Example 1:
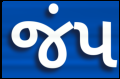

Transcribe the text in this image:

જંપ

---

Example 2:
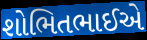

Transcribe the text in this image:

શોભિતભાઈએ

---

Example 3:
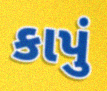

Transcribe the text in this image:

કાપું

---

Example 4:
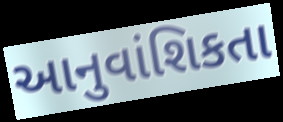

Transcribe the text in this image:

આનુવાંશિકતા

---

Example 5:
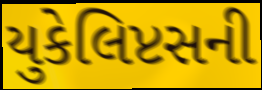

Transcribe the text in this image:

યુકેલિપ્ટસની